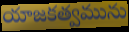
యాజకత్వమును